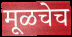
मूळचेच